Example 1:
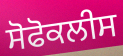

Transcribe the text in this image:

ਸੋਫੋਕਲੀਸ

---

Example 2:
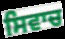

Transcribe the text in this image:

ਸਿਵਾਚ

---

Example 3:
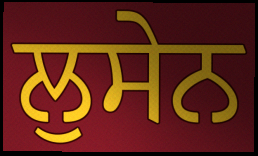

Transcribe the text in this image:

ਲੁਸੇਨ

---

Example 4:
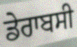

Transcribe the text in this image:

ਡੇਰਾਬਸੀ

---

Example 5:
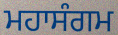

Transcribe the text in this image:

ਮਹਾਸੰਗਮ